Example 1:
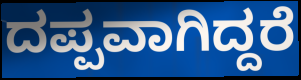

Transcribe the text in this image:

ದಪ್ಪವಾಗಿದ್ದರೆ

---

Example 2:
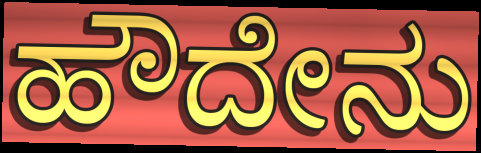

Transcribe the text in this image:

ಹೌದೇನು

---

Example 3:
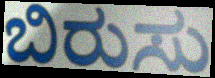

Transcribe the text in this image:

ಬಿರುಸು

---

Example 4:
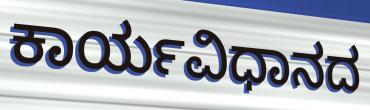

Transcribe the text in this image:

ಕಾರ್ಯವಿಧಾನದ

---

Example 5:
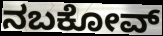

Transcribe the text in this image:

ನಬಕೋವ್